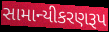
સામાન્યીકરણરૂપ